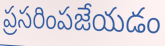
ప్రసరింపజేయడం